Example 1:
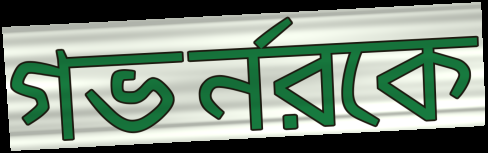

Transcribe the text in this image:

গভর্নরকে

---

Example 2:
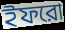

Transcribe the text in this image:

ইফরো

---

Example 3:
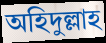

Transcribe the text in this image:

অহিদুল্লাহ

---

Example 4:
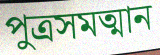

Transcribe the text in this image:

পুত্রসমত্মান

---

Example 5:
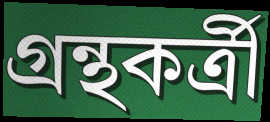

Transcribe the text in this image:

গ্রন্থকর্ত্রী